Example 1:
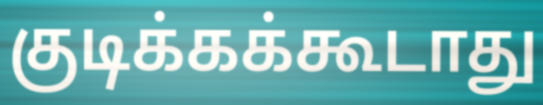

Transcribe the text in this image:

குடிக்கக்கூடாது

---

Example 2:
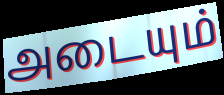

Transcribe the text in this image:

அடையும்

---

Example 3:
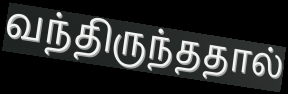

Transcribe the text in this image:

வந்திருந்ததால்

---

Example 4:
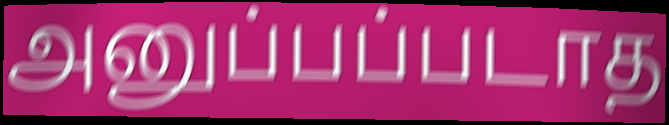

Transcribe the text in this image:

அனுப்பப்படாத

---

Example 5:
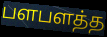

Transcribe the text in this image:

பளபளத்த